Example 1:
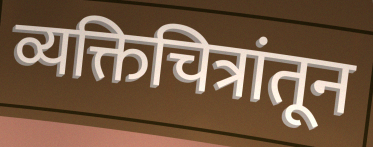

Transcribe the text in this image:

व्यक्तिचित्रांतून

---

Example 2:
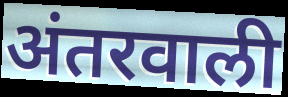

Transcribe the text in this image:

अंतरवाली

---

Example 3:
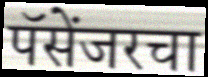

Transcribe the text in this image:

पॅसेंजरचा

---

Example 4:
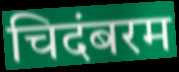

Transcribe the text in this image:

चिदंबरम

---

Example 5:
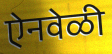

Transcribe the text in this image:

ऐनवेळी